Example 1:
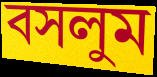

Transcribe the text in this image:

বসলুম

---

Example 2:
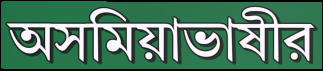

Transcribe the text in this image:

অসমিয়াভাষীর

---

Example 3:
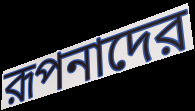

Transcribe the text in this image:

রূপনাদের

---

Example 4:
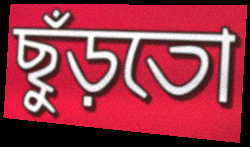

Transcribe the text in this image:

ছুঁড়তো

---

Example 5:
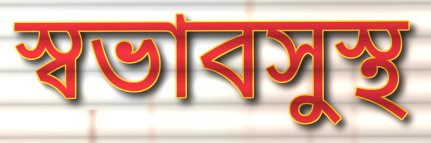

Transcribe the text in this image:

স্বভাবসুস্থ